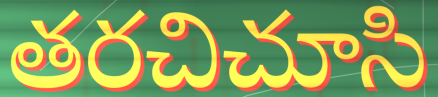
తరచిచూసి